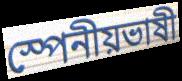
স্পেনীয়ভাষী